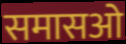
समासओ